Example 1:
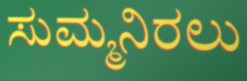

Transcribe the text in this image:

ಸುಮ್ಮನಿರಲು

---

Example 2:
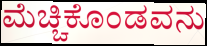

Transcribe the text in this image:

ಮೆಚ್ಚಿಕೊಂಡವನು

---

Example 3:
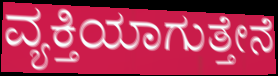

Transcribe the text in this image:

ವ್ಯಕ್ತಿಯಾಗುತ್ತೇನೆ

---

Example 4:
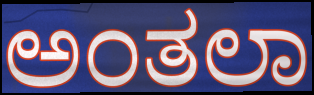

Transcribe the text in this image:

ಅಂತಲಾ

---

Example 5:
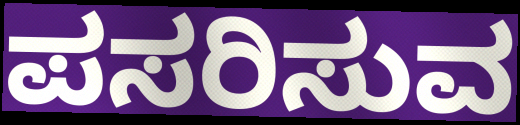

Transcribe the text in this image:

ಪಸರಿಸುವ